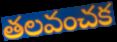
తలవంచక